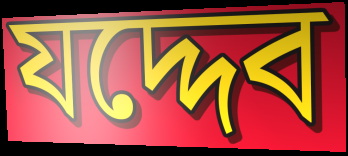
যদ্দেব